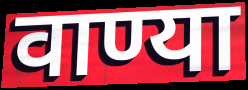
वाण्या